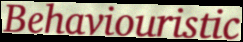
Behaviouristic